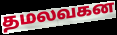
தமலவகன